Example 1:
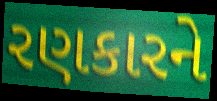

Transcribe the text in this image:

રણકારને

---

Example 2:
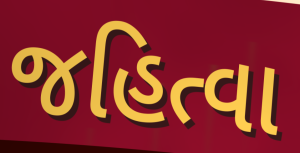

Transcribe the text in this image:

જહિત્વા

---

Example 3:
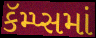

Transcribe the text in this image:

કૅમ્પ્સમાં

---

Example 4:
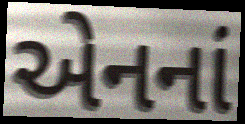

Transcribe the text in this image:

એનનાં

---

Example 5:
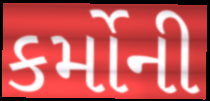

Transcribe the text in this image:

કર્મોની